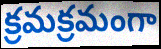
క్రమక్రమంగా